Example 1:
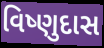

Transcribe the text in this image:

વિષ્ણુદાસ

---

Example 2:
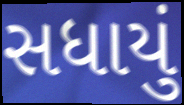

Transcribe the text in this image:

સધાયું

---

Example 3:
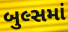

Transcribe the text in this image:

બુલ્સમાં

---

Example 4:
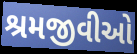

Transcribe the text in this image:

શ્રમજીવીઓ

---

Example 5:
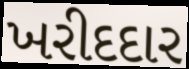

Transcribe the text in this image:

ખરીદદાર